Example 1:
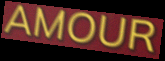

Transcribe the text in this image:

AMOUR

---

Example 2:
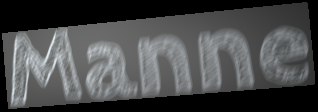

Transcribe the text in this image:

Manne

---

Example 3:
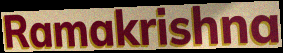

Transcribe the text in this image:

Ramakrishna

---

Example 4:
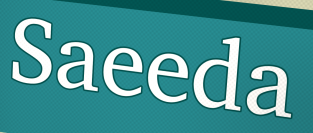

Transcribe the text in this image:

Saeeda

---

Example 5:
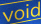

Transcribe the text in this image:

void